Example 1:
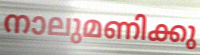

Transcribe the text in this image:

നാലുമണിക്കു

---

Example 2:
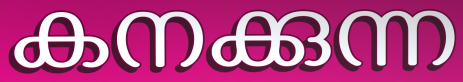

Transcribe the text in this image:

കനക്കുന്ന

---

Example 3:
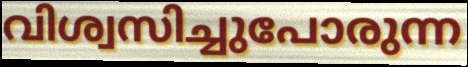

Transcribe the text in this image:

വിശ്വസിച്ചുപോരുന്ന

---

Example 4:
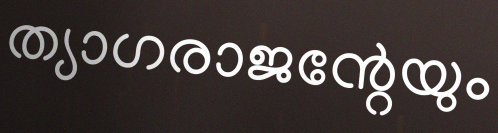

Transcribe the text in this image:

ത്യാഗരാജന്റേയും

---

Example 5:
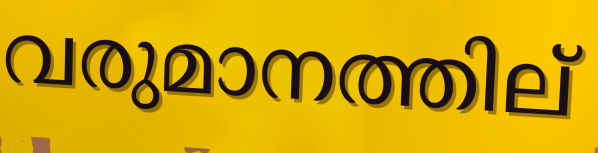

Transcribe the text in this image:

വരുമാനത്തില്